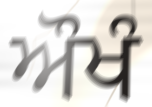
ਔਖੰ